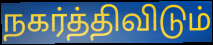
நகர்த்திவிடும்